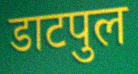
डाटपुल